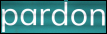
pardon